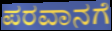
ಪರವಾನಗೆ